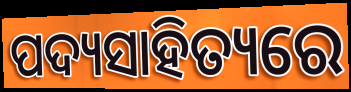
ପଦ୍ୟସାହିତ୍ୟରେ